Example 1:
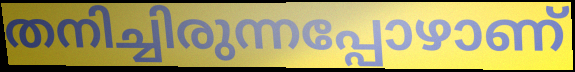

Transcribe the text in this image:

തനിച്ചിരുന്നപ്പോഴാണ്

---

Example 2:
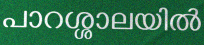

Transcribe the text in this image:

പാറശ്ശാലയിൽ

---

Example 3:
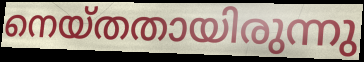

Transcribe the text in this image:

നെയ്തതായിരുന്നു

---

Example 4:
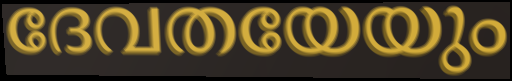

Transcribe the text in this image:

ദേവതയേയും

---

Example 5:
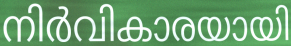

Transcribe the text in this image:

നിർവികാരയായി